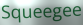
Squeegee